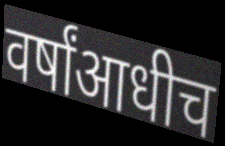
वर्षांआधीच